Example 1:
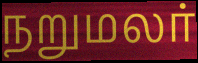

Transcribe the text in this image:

நறுமலர்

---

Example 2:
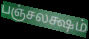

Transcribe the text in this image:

பஞ்சலக்ஷம்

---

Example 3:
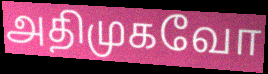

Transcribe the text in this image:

அதிமுகவோ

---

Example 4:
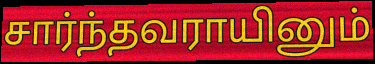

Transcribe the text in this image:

சார்ந்தவராயினும்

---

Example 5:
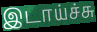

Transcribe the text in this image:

இடாய்ச்சு